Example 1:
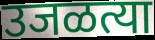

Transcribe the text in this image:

उजळत्या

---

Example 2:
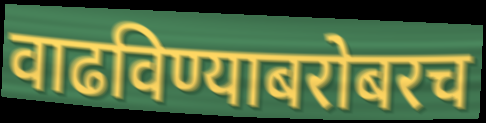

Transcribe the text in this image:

वाढविण्याबरोबरच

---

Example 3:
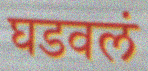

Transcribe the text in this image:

घडवलं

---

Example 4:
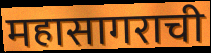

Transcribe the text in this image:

महासागराची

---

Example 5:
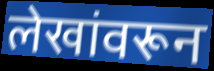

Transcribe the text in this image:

लेखांवरून